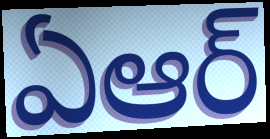
ఏఆర్